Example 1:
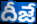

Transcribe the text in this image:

దీజే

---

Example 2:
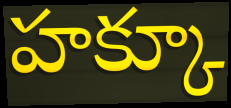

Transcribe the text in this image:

హక్కూ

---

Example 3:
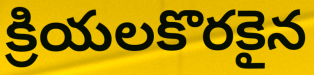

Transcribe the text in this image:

క్రియలకొరకైన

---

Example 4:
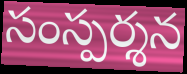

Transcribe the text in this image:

సంస్పర్శన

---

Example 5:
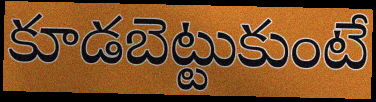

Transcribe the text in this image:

కూడబెట్టుకుంటే